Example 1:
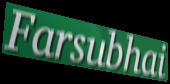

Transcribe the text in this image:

Farsubhai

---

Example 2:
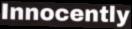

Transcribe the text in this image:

Innocently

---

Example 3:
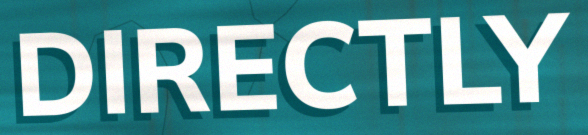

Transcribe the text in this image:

DIRECTLY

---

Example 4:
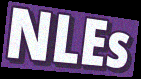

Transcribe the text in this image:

NLEs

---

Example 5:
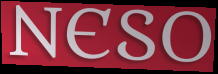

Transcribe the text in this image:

NESO